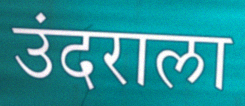
उंदराला